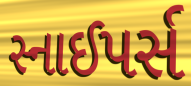
સ્નાઈપર્સ